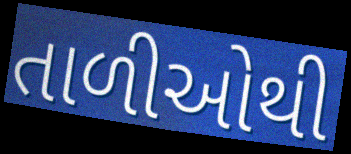
તાળીઓથી